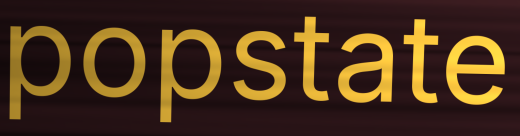
popstate